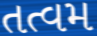
તત્વમ